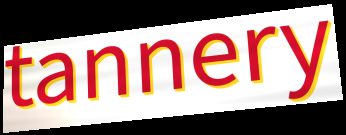
tannery